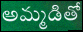
అమ్మడితో